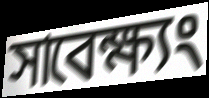
সাবেক্ষ্যং